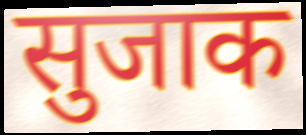
सुजाक